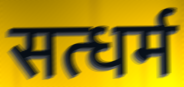
सत्धर्म